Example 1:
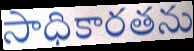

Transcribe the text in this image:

సాధికారతను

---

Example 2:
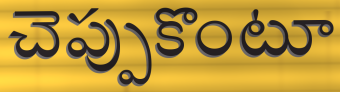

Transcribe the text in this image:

చెప్పుకొంటూ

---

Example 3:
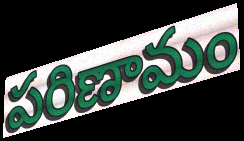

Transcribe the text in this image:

పరిణామం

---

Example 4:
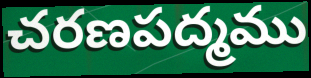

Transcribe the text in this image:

చరణపద్మము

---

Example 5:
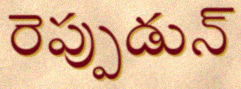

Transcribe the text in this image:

రెప్పుడున్